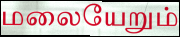
மலையேறும்